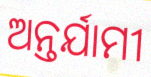
ଅନ୍ତର୍ଯାମୀ